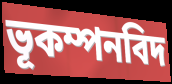
ভূকম্পনবিদ